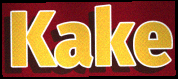
Kake